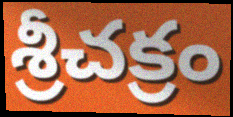
శ్రీచక్రం